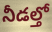
నీడల్తో